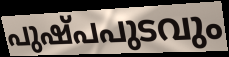
പുഷ്പപുടവും